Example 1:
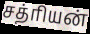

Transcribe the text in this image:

சத்ரியன்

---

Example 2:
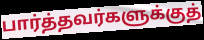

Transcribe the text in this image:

பார்த்தவர்களுக்குத்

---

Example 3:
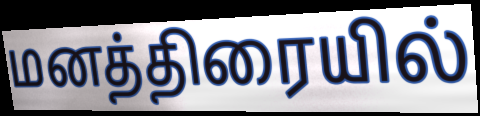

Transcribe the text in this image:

மனத்திரையில்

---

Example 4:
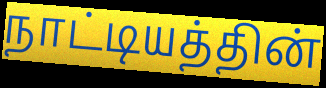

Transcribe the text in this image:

நாட்டியத்தின்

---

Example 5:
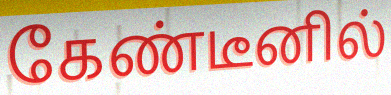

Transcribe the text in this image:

கேண்டீனில்